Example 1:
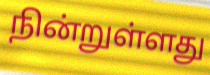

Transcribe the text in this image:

நின்றுள்ளது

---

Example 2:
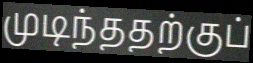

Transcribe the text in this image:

முடிந்ததற்குப்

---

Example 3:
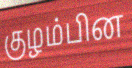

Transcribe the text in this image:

குழம்பின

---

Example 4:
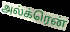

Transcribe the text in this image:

அல்க்ரென்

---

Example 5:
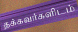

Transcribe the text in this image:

தக்கவர்களிடம்